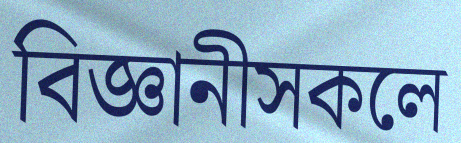
বিজ্ঞানীসকলে